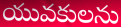
యువకులను